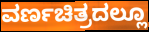
ವರ್ಣಚಿತ್ರದಲ್ಲೂ